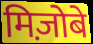
मिज़ोबे